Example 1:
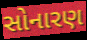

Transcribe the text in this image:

સોનારણ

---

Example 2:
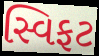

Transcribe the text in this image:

સ્વિફટ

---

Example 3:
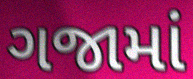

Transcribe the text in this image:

ગજામાં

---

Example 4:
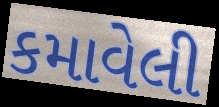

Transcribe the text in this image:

કમાવેલી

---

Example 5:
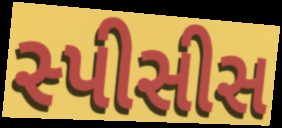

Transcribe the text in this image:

સ્પીસીસ